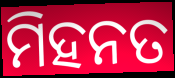
ମିହନତ